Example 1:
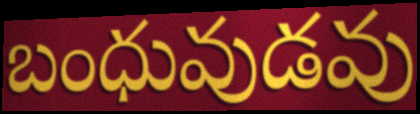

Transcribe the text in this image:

బంధువుడవు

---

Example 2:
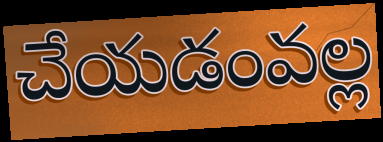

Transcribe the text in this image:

చేయడంవల్ల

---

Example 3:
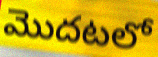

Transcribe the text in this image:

మొదటలో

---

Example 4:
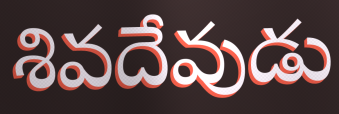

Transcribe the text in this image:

శివదేవుడు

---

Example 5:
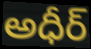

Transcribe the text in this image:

అధీర్